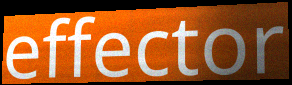
effector